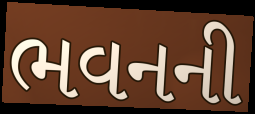
ભવનની